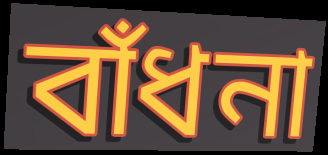
বাঁধনা